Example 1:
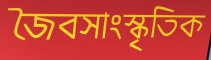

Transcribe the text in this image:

জৈবসাংস্কৃতিক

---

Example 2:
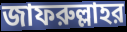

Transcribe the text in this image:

জাফরুল্লাহর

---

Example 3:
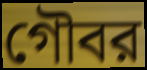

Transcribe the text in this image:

গৌবর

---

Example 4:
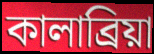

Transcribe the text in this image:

কালাব্রিয়া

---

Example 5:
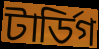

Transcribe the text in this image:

টার্ডিগ